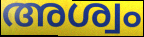
അശ്വം